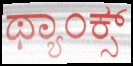
ಥ್ಯಾಂಕ್ಸ್